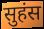
सुहंस